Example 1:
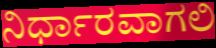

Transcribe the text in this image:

ನಿರ್ಧಾರವಾಗಲಿ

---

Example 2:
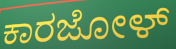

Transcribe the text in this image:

ಕಾರಜೋಳ್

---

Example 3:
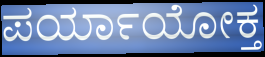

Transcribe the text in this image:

ಪರ್ಯಾಯೋಕ್ತ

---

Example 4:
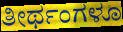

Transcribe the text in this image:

ತೀರ್ಥಂಗಳೂ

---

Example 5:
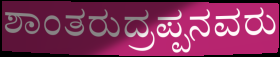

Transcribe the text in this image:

ಶಾಂತರುದ್ರಪ್ಪನವರು